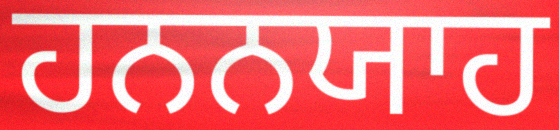
ਹਨਨਯਾਹ